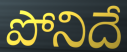
పోనిదే